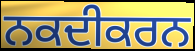
ਨਕਦੀਕਰਨ